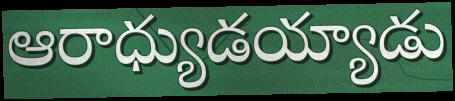
ఆరాధ్యుడయ్యాడు